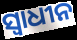
ସ୍ୱାଧୀନ